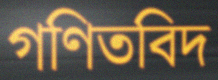
গণিতবিদ